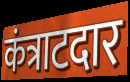
कंत्राटदार